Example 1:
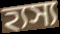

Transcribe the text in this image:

হ্যস্য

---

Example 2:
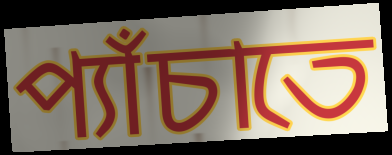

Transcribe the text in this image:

প্যাঁচাতে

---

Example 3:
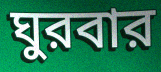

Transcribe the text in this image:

ঘুরবার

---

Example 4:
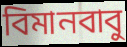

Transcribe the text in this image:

বিমানবাবু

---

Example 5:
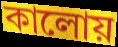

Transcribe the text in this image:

কালোয়